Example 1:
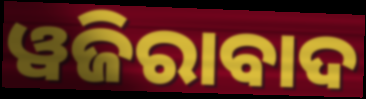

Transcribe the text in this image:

ୱଜିରାବାଦ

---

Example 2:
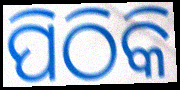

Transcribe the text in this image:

ପିଠିକି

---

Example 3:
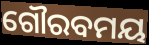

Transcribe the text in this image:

ଗୌରବମୟ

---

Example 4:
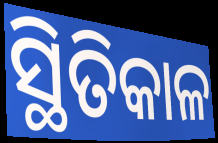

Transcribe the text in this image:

ସ୍ଥିତିକାଳ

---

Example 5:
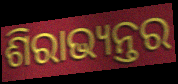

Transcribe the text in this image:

ଶିରାଭ୍ୟନ୍ତର